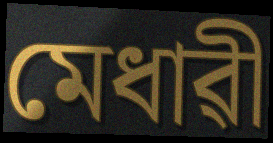
মেধাৱী